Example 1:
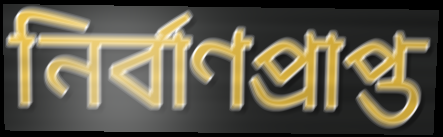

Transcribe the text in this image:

নির্বাণপ্রাপ্ত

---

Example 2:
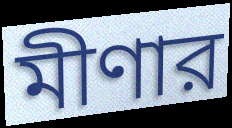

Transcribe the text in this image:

মীণার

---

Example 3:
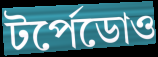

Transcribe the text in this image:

টর্পেডোও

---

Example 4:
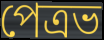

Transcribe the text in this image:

পেত্রভ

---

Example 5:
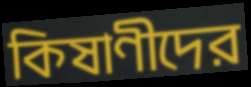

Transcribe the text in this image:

কিষাণীদের